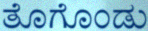
ತೊಗೊಂಡು